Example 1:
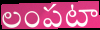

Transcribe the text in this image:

లంపటా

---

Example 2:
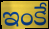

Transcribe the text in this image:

ఇంకే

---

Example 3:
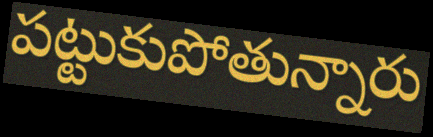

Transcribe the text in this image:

పట్టుకుపోతున్నారు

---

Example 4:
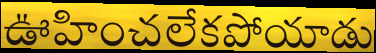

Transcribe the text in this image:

ఊహించలేకపోయాడు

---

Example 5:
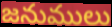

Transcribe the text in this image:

జనుములు